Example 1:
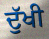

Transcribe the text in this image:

ਦੁੱਖੀ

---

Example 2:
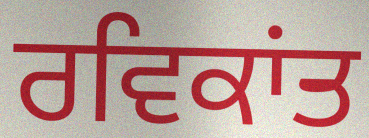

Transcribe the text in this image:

ਰਵਿਕਾਂਤ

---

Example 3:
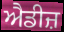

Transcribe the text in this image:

ਐਡੀਜ਼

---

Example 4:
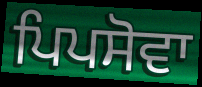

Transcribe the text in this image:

ਪਿਪਸੋਵਾ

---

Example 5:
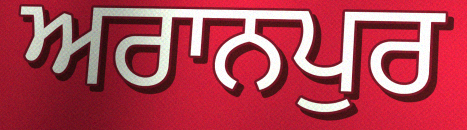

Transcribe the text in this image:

ਅਰਾਨਪੁਰ